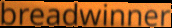
breadwinner